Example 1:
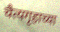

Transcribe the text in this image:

चैत्यगृहाच्या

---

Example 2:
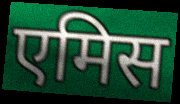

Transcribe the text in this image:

एमिस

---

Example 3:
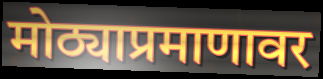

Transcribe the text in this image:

मोठ्याप्रमाणावर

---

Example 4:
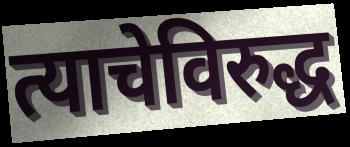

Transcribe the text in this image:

त्याचेविरुद्ध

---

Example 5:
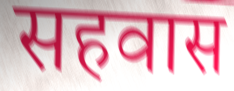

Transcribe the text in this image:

सहवास